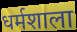
धर्मशाला